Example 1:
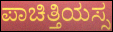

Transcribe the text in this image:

ಪಾಚಿತ್ತಿಯಸ್ಸ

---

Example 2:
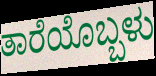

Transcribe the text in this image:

ತಾರೆಯೊಬ್ಬಳು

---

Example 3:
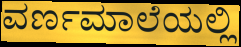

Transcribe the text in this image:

ವರ್ಣಮಾಲೆಯಲ್ಲಿ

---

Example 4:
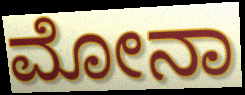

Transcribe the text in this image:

ಮೋನಾ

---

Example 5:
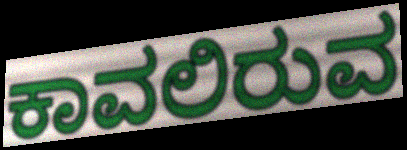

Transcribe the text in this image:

ಕಾವಲಿರುವ